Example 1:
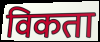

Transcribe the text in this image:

विकता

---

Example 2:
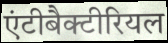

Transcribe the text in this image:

एंटीबैक्टीरियल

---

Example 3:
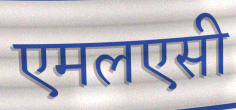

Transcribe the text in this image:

एमलएसी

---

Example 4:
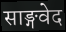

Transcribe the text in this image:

साङ्गवेद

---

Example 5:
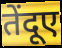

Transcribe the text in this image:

तेंदूए